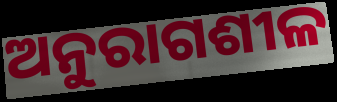
ଅନୁରାଗଶୀଳ